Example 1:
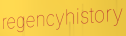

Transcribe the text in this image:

regencyhistory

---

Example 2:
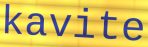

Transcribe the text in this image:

kavite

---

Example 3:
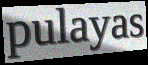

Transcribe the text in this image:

pulayas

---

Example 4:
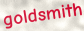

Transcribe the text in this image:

goldsmith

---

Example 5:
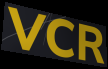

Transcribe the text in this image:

VCR